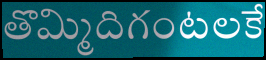
తొమ్మిదిగంటలకే